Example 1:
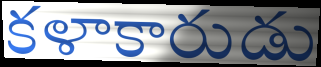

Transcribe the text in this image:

కళాకారుడు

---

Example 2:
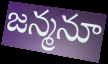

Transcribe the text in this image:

జన్మనూ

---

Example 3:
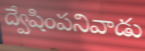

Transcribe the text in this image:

ద్వేషింపనివాడు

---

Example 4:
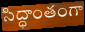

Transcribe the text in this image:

సిద్ధాంతంగా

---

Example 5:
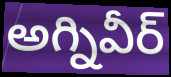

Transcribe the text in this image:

అగ్నివీర్